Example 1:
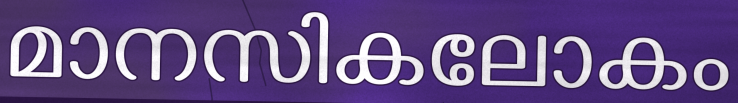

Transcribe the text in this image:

മാനസികലോകം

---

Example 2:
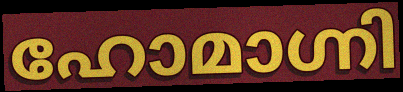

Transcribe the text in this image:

ഹോമാഗ്നി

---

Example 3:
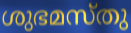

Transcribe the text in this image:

ശുഭമസ്തു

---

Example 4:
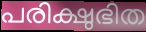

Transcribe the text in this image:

പരിക്ഷുഭിത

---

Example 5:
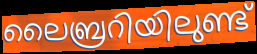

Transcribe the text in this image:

ലൈബ്രറിയിലുണ്ട്